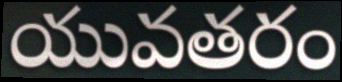
యువతరం